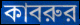
কাবরুর